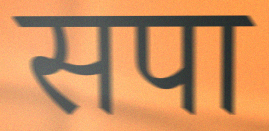
सपा